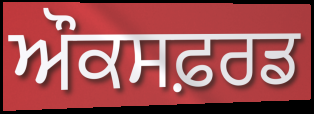
ਔਕਸਫ਼ਰਡ